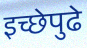
इच्छेपुढे